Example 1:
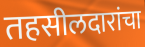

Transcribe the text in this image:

तहसीलदारांचा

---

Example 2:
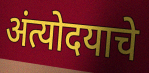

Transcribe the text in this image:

अंत्योदयाचे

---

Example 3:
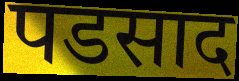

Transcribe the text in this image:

पडसाद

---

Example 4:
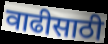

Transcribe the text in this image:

वाढीसाठी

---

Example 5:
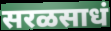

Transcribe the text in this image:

सरळसाधं